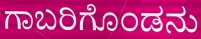
ಗಾಬರಿಗೊಂಡನು